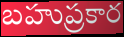
బహుప్రకార